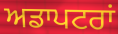
ਅਡਾਪਟਰਾਂ